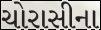
ચોરાસીના